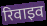
रिवाइव